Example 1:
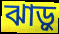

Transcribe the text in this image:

ঝাড়ু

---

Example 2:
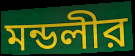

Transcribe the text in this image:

মন্ডলীর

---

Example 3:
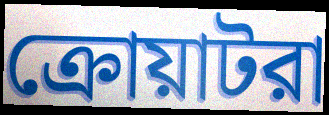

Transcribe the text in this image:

ক্রোয়াটরা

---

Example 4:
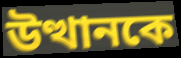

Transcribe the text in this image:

উত্থানকে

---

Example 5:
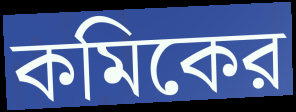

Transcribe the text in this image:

কমিকের